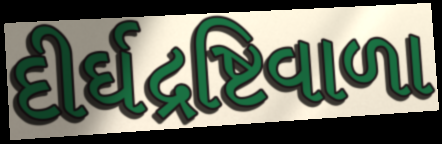
દીર્ઘદ્રષ્ટિવાળા